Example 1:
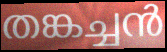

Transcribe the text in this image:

തങ്കച്ചൻ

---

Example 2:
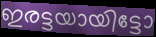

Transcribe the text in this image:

ഇരട്ടയായിട്ടോ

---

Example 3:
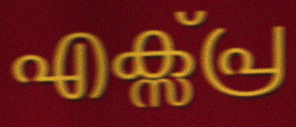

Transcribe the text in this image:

എക്സ്പ്ര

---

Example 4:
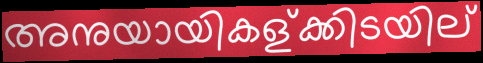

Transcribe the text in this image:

അനുയായികള്ക്കിടയില്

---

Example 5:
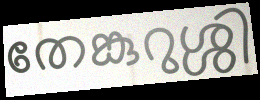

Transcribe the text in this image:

തേങ്കുറുശ്ശി